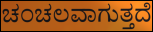
ಚಂಚಲವಾಗುತ್ತದೆ